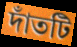
দাঁতটি